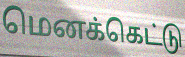
மெனக்கெட்டு